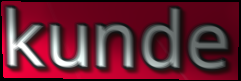
kunde